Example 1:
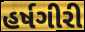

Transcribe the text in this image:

હર્ષગીરી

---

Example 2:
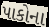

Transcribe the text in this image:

પાકોના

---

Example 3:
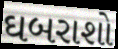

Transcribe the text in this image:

ઘબરાશો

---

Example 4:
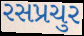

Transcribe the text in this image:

રસપ્રચુર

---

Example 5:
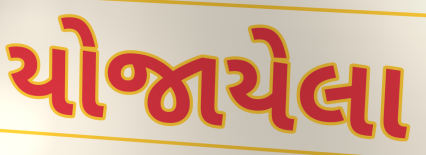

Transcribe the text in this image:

યોજાયેલા